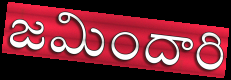
జమిందారి